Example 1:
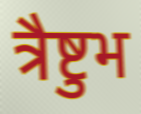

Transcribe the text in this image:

त्रैष्टुभ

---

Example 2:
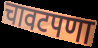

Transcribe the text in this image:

चावटपणा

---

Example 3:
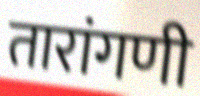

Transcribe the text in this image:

तारांगणी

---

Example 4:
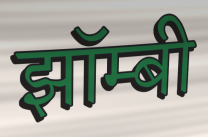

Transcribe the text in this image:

झॉम्बी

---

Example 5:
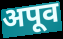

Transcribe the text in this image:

अपूव